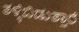
ತಳ್ಳಿಬಿಡುತ್ತಾರೆ